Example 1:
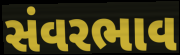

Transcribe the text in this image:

સંવરભાવ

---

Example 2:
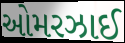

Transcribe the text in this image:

ઓમરઝાઈ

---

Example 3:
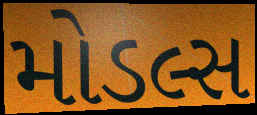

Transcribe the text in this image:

મોડલ્સ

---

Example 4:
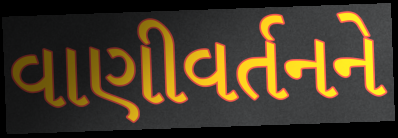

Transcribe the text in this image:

વાણીવર્તનને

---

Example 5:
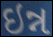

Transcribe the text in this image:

ઇન્ન